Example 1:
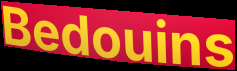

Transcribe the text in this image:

Bedouins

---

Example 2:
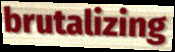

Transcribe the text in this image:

brutalizing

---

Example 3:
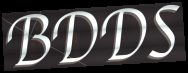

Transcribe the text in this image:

BDDS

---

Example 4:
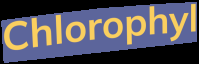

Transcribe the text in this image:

Chlorophyl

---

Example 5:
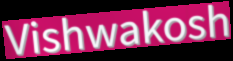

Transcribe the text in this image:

Vishwakosh